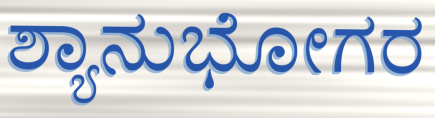
ಶ್ಯಾನುಭೋಗರ